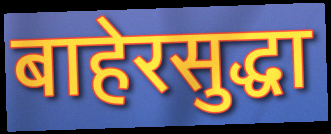
बाहेरसुद्धा